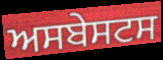
ਅਸਬੇਸਟਸ